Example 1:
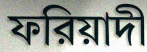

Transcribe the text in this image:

ফরিয়াদী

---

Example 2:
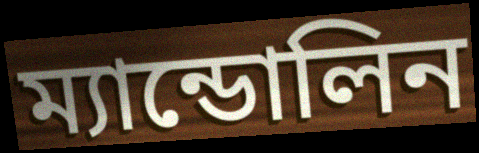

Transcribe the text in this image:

ম্যান্ডোলিন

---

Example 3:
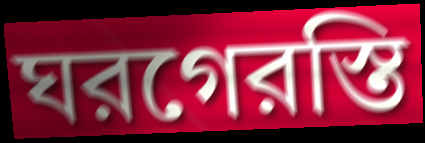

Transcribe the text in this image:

ঘরগেরস্তি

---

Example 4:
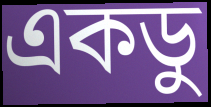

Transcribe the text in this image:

একডু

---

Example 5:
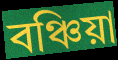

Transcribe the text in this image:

বঞ্চিয়া